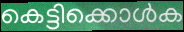
കെട്ടിക്കൊൾക